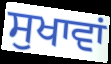
ਸੁਖਾਵਾਂ